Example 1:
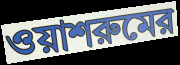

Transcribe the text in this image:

ওয়াশরুমের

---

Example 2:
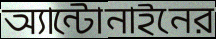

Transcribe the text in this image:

অ্যান্টোনাইনের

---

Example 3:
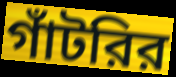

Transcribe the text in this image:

গাঁটরির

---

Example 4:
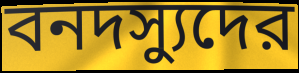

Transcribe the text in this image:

বনদস্যুদের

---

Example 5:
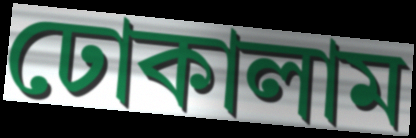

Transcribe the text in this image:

ঢোকালাম